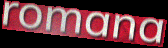
romana